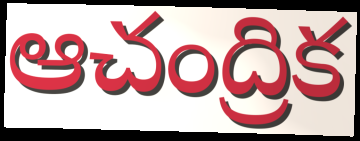
ఆచంద్రిక